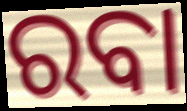
ରବା